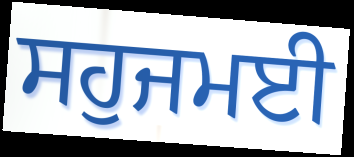
ਸਹੁਜਮਈ